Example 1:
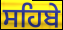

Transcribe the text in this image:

ਸਹਿਬੇ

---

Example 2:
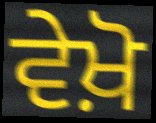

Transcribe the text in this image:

ਵੇਖ਼ੋ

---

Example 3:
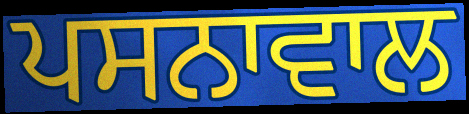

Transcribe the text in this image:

ਪਸਨਾਵਾਲ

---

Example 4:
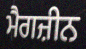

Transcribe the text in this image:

ਮੈਗਜ਼ੀਨ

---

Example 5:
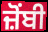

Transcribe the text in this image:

ਜ਼ੋਂਬੀ